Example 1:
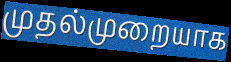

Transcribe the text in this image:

முதல்முறையாக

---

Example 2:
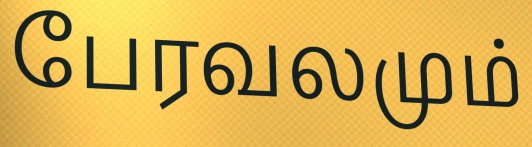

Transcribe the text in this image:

பேரவலமும்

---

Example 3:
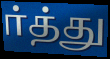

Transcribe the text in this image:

ர்த்து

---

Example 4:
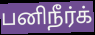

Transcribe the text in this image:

பனிநீர்க்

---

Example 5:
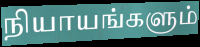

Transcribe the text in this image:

நியாயங்களும்